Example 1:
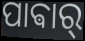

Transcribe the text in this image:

ପାଵାର୍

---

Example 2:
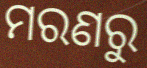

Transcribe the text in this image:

ମରଣରୁ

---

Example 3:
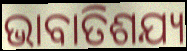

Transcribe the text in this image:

ଭାବାତିଶଯ୍ୟ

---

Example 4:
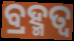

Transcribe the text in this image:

ବ୍ରହ୍ମତ୍ୱ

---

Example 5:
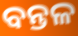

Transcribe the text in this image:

ବନ୍ତଳ